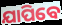
ଯାପିବେ